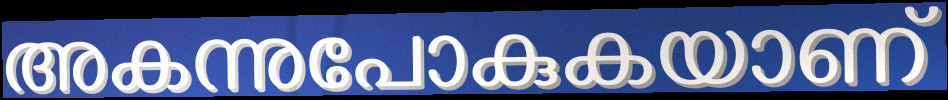
അകന്നുപോകുകയാണ്